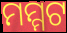
ମମ୍ମଟ